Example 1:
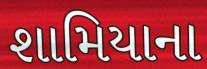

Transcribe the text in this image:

શામિયાના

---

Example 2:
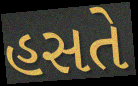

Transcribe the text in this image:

હસતે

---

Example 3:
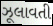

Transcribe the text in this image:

ઝૂલાવતી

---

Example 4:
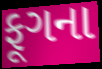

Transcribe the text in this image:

ફૂગના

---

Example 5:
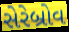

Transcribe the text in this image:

સેરેબ્રોવ